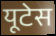
यूटेस